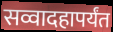
सव्वादहापर्यंत